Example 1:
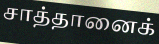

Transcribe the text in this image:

சாத்தானைக்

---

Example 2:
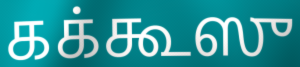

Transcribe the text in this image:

கக்கூஸு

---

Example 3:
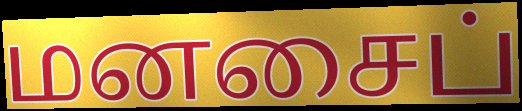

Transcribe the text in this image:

மனசைப்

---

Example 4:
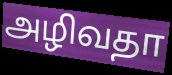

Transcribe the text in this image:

அழிவதா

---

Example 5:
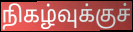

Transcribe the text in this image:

நிகழ்வுக்குச்